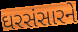
ઘરસંસારને